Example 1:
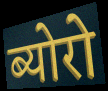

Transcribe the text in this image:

ब्योरो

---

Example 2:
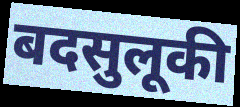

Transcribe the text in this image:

बदसुलूकी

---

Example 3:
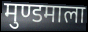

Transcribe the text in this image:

मुण्डमाला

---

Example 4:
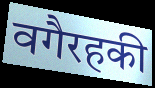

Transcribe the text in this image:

वगैरहकी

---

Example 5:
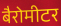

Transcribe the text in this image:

बैरोमीटर